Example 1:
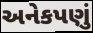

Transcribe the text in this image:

અનેકપણું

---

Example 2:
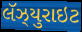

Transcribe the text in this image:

લૅઝ્યુરાઇટ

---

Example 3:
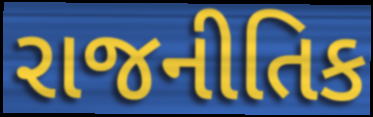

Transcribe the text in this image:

રાજનીતિક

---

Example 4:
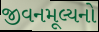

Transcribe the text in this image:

જીવનમૂલ્યનો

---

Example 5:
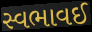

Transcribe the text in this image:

સ્વભાવઈ